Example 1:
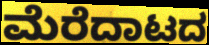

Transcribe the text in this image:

ಮೆರೆದಾಟದ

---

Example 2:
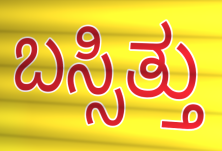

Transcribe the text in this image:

ಬಸ್ಸಿತ್ತು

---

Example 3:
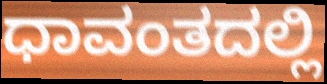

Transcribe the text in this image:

ಧಾವಂತದಲ್ಲಿ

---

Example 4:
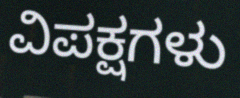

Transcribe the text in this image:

ವಿಪಕ್ಷಗಳು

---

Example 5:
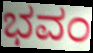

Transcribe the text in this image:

ಭವಂ